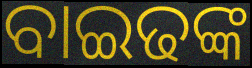
ବାଇଢଙ୍କ